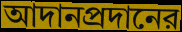
আদানপ্রদানের